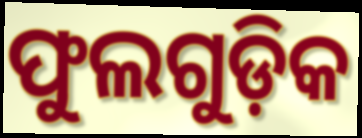
ଫୁଲଗୁଡ଼ିକ